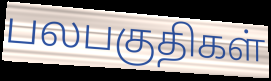
பலபகுதிகள்